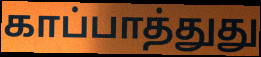
காப்பாத்துது